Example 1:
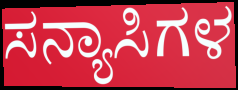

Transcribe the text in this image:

ಸನ್ಯಾಸಿಗಳ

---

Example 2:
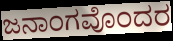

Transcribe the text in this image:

ಜನಾಂಗವೊಂದರ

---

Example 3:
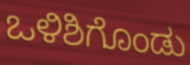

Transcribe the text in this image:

ಒಳಿಶಿಗೊಂಡು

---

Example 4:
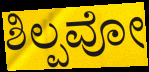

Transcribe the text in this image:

ಶಿಲ್ಪವೋ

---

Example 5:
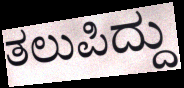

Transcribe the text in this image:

ತಲುಪಿದ್ದು